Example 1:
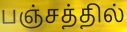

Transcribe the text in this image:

பஞ்சத்தில்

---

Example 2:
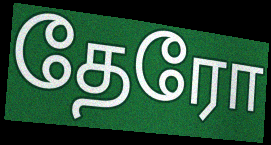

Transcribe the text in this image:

தேரோ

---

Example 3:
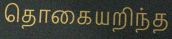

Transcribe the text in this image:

தொகையறிந்த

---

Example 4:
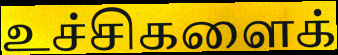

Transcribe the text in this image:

உச்சிகளைக்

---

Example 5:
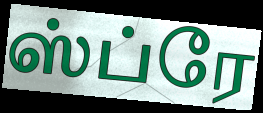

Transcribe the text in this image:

ஸ்ப்ரே